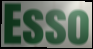
Esso